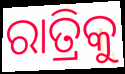
ରାତ୍ରିକୁ